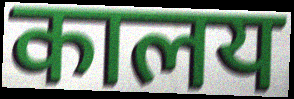
कालय